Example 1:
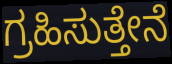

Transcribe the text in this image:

ಗ್ರಹಿಸುತ್ತೇನೆ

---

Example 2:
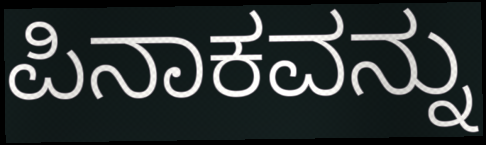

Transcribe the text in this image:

ಪಿನಾಕವನ್ನು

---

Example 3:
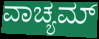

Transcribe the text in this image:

ವಾಚ್ಯಮ್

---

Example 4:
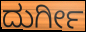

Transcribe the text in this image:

ದುರ್ಗೀ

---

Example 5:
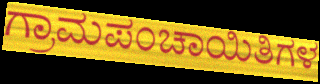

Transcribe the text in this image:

ಗ್ರಾಮಪಂಚಾಯಿತಿಗಳ